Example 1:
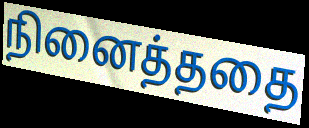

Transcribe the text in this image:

நினைத்ததை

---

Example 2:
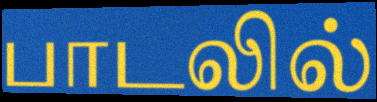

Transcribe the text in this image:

பாடலில்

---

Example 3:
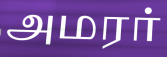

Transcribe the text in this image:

அமரர்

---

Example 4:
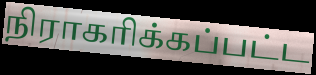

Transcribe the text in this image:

நிராகரிக்கப்பட்ட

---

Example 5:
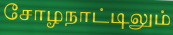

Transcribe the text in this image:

சோழநாட்டிலும்